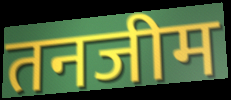
तनजीम